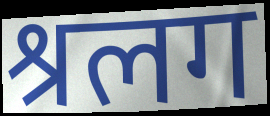
श्रलग